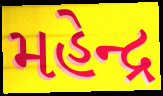
મહેન્દ્ર